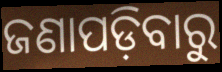
ଜଣାପଡ଼ିବାରୁ